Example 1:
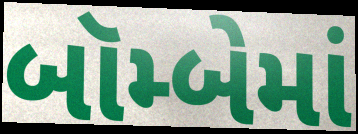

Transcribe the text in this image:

બૉમ્બેમાં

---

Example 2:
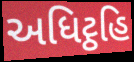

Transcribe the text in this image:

અધિટ્ઠહિ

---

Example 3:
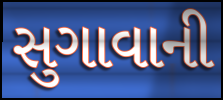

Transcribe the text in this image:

સુગાવાની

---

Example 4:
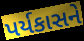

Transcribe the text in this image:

પર્યકાસને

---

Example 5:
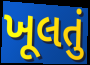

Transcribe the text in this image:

ખૂલતું